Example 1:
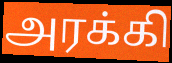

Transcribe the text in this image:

அரக்கி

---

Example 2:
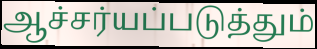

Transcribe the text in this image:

ஆச்சர்யப்படுத்தும்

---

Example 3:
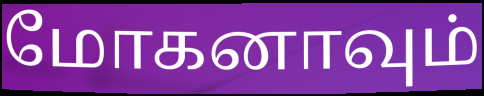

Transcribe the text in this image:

மோகனாவும்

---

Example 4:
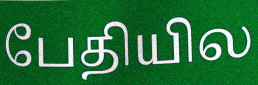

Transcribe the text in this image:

பேதியில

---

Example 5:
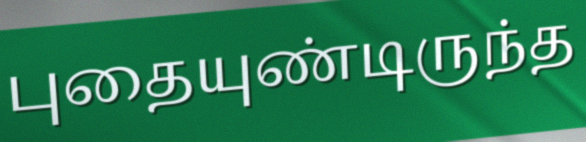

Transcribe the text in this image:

புதையுண்டிருந்த